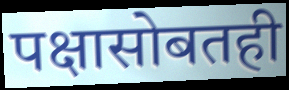
पक्षासोबतही